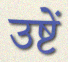
उष्टें